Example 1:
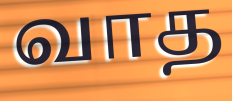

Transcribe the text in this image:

வாத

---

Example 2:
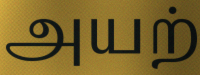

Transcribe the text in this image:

அயற்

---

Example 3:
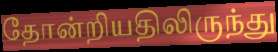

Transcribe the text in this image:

தோன்றியதிலிருந்து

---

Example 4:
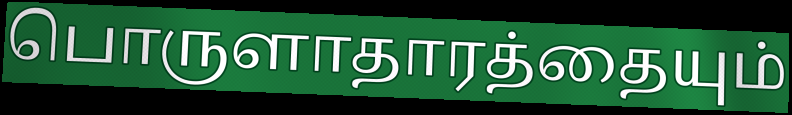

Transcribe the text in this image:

பொருளாதாரத்தையும்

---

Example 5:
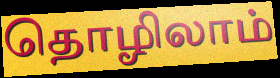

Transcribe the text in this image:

தொழிலாம்